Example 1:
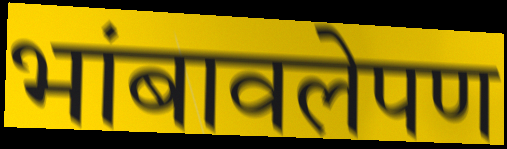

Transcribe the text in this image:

भांबावलेपण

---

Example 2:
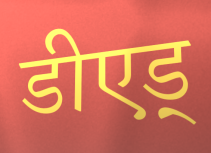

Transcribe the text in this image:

डीएड्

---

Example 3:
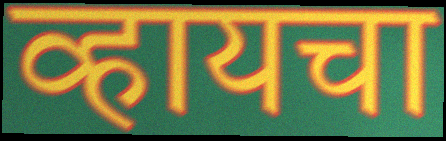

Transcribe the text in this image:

व्हायचा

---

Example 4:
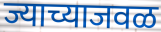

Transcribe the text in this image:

ज्याच्याजवळ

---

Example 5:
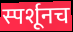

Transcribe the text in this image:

स्पर्शूनच